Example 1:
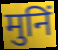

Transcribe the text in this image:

मुनिं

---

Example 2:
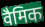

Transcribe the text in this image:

वैमिक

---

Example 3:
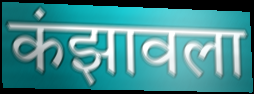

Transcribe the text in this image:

कंझावला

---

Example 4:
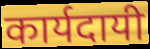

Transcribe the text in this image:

कार्यदायी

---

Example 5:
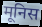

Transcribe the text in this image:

मूनिस